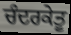
ਚੰਦਰਕੇਤੂ